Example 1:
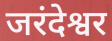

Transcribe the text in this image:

जरंदेश्वर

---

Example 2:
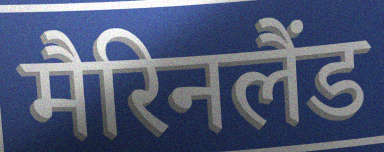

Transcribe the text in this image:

मैरिनलैंड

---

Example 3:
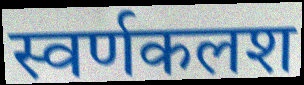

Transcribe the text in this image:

स्वर्णकलश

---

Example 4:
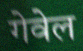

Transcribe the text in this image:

गेवेल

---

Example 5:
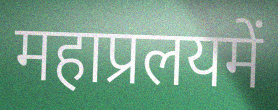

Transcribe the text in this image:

महाप्रलयमें